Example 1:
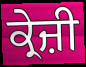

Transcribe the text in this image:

ਕ੍ਰੇਜ਼ੀ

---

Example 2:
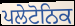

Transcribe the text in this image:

ਪਲੇਟੋਨਿਕ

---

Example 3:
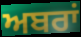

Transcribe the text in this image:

ਅਬਰਾਂ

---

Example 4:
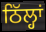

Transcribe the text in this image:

ਠਿੱਲ੍ਹਾਂ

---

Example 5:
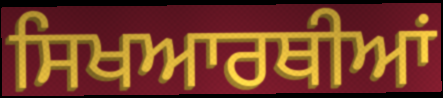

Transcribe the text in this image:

ਸਿਖਆਰਥੀਆਂ